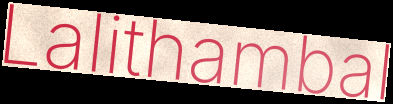
Lalithambal